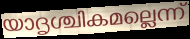
യാദൃശ്ചികമല്ലെന്ന്